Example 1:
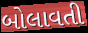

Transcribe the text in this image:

બોલાવતી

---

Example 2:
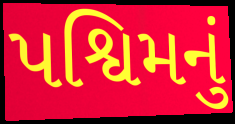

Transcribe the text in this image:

પશ્વિમનું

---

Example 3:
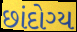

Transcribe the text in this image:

છાંદોગ્ય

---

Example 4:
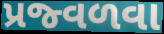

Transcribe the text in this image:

પ્રજ્વળવા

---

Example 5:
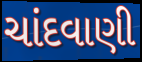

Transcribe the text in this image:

ચાંદવાણી